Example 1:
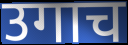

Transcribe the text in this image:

उगाच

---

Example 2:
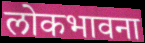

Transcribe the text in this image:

लोकभावना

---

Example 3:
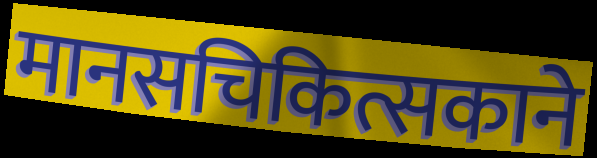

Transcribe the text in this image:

मानसचिकित्सकाने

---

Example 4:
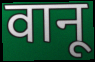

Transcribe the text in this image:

वानू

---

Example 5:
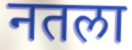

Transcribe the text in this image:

नतला